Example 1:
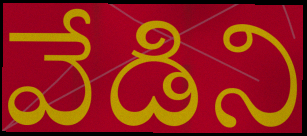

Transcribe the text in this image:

వేడిని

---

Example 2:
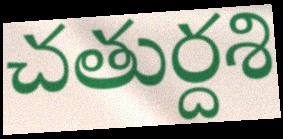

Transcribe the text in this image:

చతుర్దశి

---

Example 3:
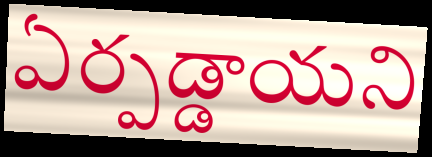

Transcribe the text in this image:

ఏర్పడ్డాయని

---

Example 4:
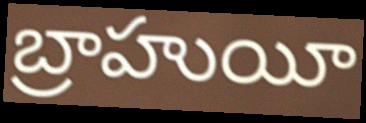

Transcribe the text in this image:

బ్రాహుయీ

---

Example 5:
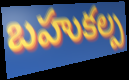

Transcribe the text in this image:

బహుకల్ప